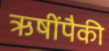
ऋषींपैकी